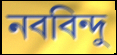
নববিন্দু